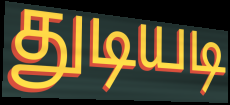
துடியடி